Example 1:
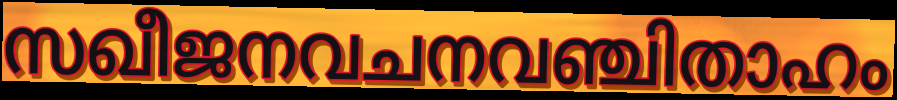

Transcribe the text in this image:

സഖീജനവചനവഞ്ചിതാഹം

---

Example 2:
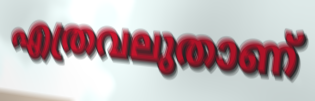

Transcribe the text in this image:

എത്രവലുതാണ്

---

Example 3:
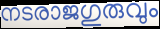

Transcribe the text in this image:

നടരാജഗുരുവും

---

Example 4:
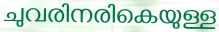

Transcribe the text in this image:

ചുവരിനരികെയുള്ള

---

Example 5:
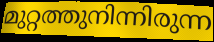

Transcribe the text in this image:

മുറ്റത്തുനിന്നിരുന്ന